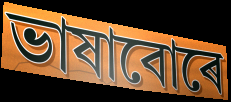
ভাষাবোৰে